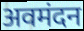
अवमंदन